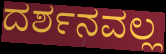
ದರ್ಶನವಲ್ಲ